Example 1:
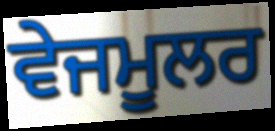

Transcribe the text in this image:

ਵੇਜਮੂਲਰ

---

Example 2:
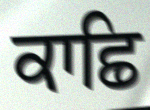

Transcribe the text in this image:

ਕਾਛਿ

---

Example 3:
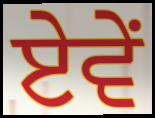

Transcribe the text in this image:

ਏਵੇਂ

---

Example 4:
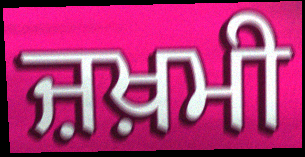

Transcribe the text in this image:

ਜ਼ਖ਼ਮੀ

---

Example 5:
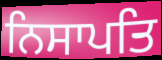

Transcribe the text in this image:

ਨਿਸਾਪਤਿ